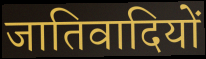
जातिवादियों